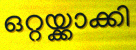
ഒറ്റയ്ക്കാക്കി